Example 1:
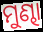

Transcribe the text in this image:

ମୁଣ୍ଢା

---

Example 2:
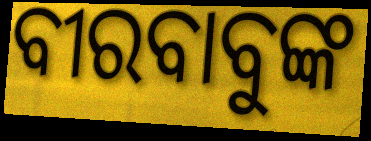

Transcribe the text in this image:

ବୀରବାବୁଙ୍କ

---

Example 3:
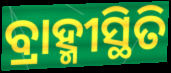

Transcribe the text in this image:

ବ୍ରାହ୍ମୀସ୍ଥିତି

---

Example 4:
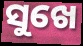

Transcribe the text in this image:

ସୁଖେ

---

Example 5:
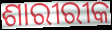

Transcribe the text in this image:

ଶାରୀରୀକ